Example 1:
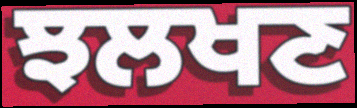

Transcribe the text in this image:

ਝਲਖਣ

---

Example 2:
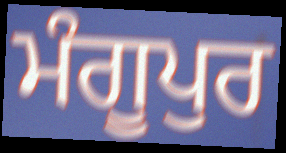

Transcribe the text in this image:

ਮੰਗੂਪੁਰ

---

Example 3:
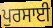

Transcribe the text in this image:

ਪੁਰਸਾਈ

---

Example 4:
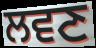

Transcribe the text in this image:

ਲਵਣ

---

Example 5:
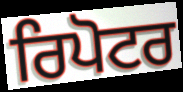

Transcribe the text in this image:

ਰਿਪੋਟਰ